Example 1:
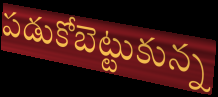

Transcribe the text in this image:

పడుకోబెట్టుకున్న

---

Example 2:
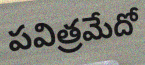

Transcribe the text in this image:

పవిత్రమేదో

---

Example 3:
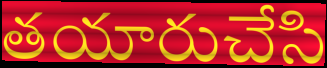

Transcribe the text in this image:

తయారుచేసి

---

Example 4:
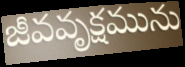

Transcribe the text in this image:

జీవవృక్షమును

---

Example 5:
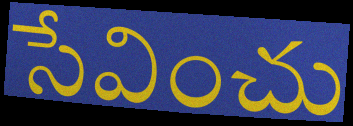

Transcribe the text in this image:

సేవించు